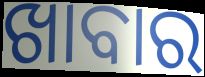
ଖାବାର